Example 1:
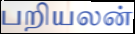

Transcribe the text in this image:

பறியலன்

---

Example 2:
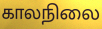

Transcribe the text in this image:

காலநிலை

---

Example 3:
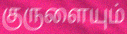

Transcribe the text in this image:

குருளையும்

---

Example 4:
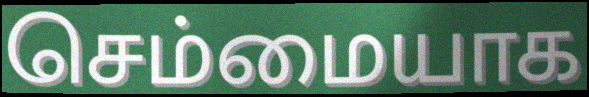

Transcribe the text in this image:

செம்மையாக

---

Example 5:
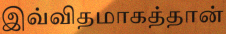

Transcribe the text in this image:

இவ்விதமாகத்தான்